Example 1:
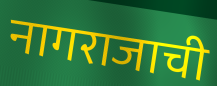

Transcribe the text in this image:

नागराजाची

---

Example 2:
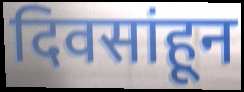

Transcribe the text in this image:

दिवसांहून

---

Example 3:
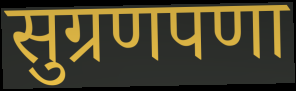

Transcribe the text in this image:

सुग्रणपणा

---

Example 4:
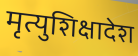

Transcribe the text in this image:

मृत्युशिक्षादेश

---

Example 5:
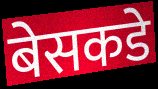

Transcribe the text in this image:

बेसकडे